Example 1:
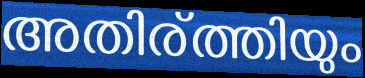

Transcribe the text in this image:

അതിര്ത്തിയും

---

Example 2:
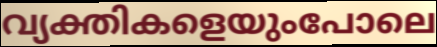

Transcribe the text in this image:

വ്യക്തികളെയുംപോലെ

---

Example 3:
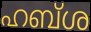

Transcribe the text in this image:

ഹബ്ശ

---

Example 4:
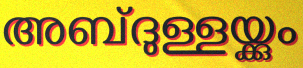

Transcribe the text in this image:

അബ്ദുള്ളയ്ക്കും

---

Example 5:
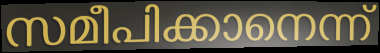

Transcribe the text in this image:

സമീപിക്കാനെന്ന്